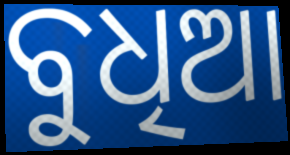
ବୁଧିଆ